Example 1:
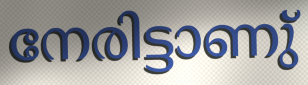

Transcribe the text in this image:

നേരിട്ടാണു്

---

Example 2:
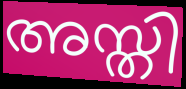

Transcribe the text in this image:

അസ്തി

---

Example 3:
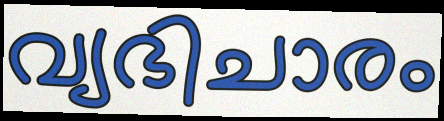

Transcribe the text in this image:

വ്യഭിചാരം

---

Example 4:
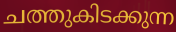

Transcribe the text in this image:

ചത്തുകിടക്കുന്ന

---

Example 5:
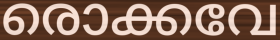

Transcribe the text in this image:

രൊക്കവേ